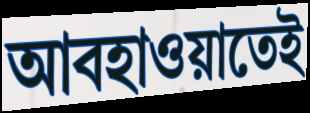
আবহাওয়াতেই